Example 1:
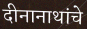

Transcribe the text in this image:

दीनानाथांचे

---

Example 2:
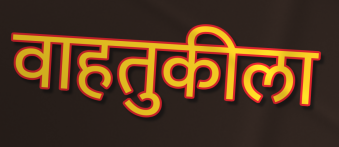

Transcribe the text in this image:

वाहतुकीला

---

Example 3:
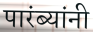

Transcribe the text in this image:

पारंब्यांनी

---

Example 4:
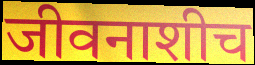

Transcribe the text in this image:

जीवनाशीच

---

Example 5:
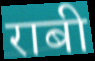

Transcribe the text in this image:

राबी